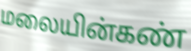
மலையின்கண்